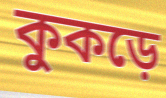
কুকড়ে